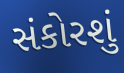
સંકોરશું